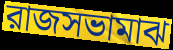
রাজসভামাঝ